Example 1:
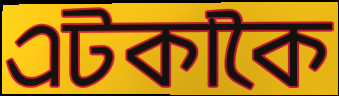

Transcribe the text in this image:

এটকাকৈ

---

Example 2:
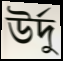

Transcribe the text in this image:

উৰ্দু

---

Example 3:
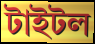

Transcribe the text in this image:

টাইটল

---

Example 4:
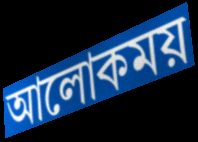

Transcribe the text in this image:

আলোকময়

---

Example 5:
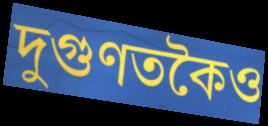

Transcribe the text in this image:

দুগুণতকৈও